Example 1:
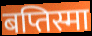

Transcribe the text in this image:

बप्तिस्मा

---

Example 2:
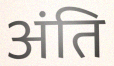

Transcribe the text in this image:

अंति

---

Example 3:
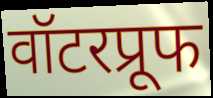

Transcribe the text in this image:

वॉटरप्रूफ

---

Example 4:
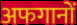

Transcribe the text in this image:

अफगानों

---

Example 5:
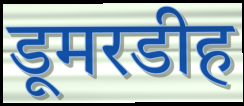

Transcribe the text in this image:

डूमरडीह